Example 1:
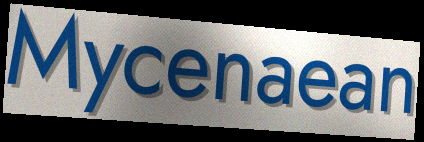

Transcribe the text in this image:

Mycenaean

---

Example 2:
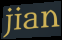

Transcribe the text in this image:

jian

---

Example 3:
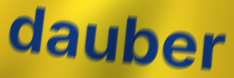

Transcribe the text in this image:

dauber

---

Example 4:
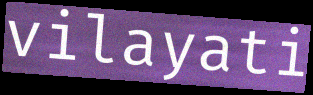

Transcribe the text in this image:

vilayati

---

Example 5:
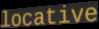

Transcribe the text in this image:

locative